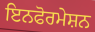
ਇਨਫੋਰਮੇਸ਼ਨ